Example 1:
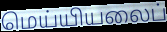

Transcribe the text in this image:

மெய்யியலைப்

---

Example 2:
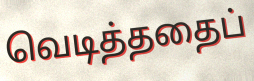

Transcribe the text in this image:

வெடித்ததைப்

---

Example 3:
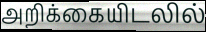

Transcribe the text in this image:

அறிக்கையிடலில்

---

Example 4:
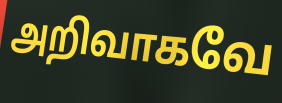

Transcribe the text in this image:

அறிவாகவே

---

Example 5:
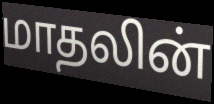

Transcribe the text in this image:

மாதலின்